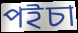
পইচা